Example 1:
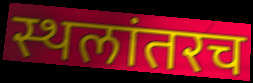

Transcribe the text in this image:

स्थलांतरच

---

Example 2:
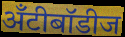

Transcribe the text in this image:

अँटीबॉडीज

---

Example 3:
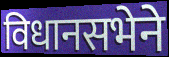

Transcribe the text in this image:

विधानसभेने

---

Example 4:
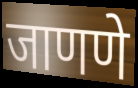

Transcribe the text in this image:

जाणणे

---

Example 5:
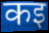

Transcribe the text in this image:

कइ